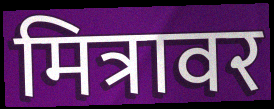
मित्रावर